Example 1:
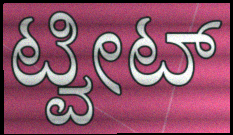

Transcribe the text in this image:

ಟ್ವೀಟ್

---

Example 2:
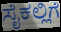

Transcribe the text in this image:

ಸೈಕಲ್ಲಿಗೆ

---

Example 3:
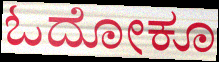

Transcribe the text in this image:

ಓದೋಕೂ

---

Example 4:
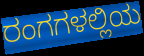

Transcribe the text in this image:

ರಂಗಗಳಲ್ಲಿಯ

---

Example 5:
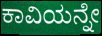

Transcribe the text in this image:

ಕಾವಿಯನ್ನೇ